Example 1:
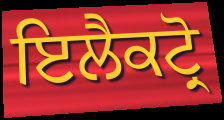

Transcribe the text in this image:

ਇਲੈਕਟ੍ਰੋ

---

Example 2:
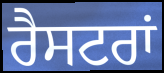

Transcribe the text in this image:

ਰੈਸਟਰਾਂ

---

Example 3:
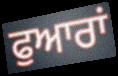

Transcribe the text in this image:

ਫੁਆਰਾਂ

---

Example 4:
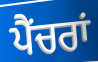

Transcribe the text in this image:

ਪੈਂਚਰਾਂ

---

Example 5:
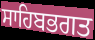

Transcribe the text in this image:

ਸਾਹਿਬਭਗਤ